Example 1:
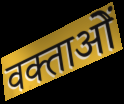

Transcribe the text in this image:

वक्ताओें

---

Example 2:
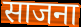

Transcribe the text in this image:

साजना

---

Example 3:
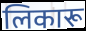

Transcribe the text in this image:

लिकारू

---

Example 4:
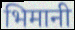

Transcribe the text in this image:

भिमानी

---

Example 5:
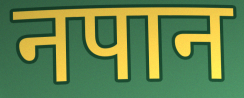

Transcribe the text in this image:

नपान